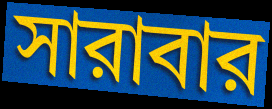
সারাবার